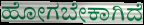
ಹೋಗಬೇಕಾಗಿದೆ